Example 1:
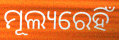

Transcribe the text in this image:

ମୂଲ୍ୟରେହିଁ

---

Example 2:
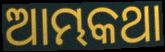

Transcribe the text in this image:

ଆମ୍ଭକଥା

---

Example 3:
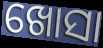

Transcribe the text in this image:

ଖୋସା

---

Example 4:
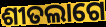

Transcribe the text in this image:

ଶୀତଲାଗେ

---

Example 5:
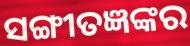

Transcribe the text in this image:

ସଙ୍ଗୀତଜ୍ଞଙ୍କର